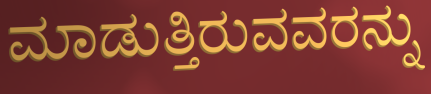
ಮಾಡುತ್ತಿರುವವರನ್ನು